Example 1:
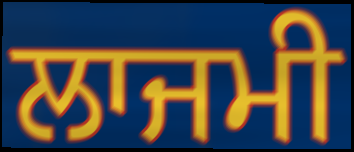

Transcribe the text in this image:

ਲਾਜਮੀ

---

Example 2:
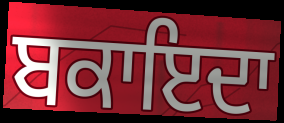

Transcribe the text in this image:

ਬਕਾਇਦਾ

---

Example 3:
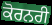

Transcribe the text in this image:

ਕੋਰਨਰੀ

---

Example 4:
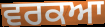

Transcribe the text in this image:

ਵਰਕਆ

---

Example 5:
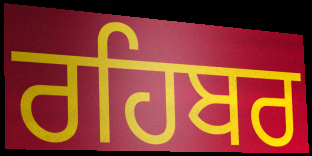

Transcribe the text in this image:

ਰਹਿਬਰ